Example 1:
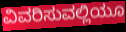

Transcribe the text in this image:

ವಿವರಿಸುವಲ್ಲಿಯೂ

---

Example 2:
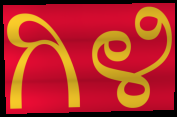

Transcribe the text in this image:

ಗಿಳಿ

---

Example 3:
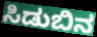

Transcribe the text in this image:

ಸಿಡುಬಿನ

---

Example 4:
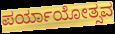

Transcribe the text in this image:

ಪರ್ಯಾಯೋತ್ಸವ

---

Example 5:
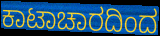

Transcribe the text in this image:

ಕಾಟಾಚಾರದಿಂದ